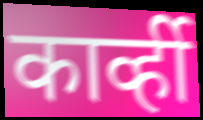
कार्व्ही